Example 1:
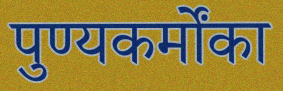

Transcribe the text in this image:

पुण्यकर्मोंका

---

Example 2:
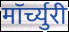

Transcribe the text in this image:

मॉर्च्युरी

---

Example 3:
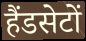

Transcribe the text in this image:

हैंडसेटों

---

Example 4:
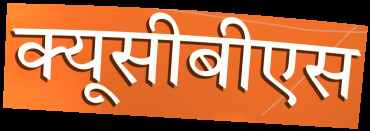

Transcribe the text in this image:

क्यूसीबीएस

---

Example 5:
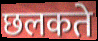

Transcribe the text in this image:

छलकते